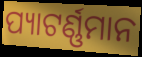
ପ୍ୟାଟର୍ଣ୍ଣମାନ